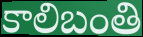
కాలిబంతి